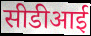
सीडीआई